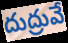
దుద్రువే